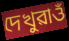
দেখুৱাওঁ